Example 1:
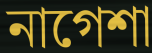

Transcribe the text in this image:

নাগেশা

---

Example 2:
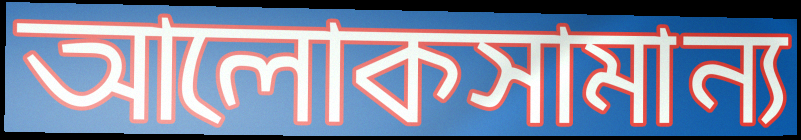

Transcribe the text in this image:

আলোকসামান্য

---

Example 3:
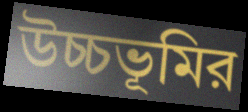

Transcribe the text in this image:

উচ্চভূমির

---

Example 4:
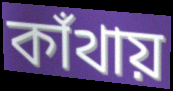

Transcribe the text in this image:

কাঁথায়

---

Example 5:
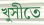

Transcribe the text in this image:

খুসীতে